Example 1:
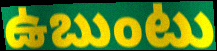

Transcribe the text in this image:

ఉబుంటు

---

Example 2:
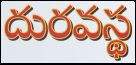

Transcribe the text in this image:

దురవస్థ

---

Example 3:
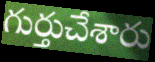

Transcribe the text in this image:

గుర్తుచేశారు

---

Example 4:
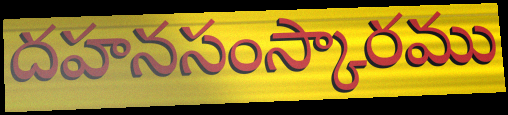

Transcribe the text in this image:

దహనసంస్కారము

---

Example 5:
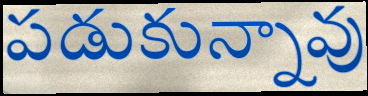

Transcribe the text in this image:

పడుకున్నావు